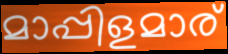
മാപ്പിളമാര്